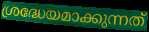
ശ്രദ്ധേയമാക്കുന്നത്